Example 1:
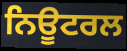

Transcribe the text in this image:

ਨਿਊਟਰਲ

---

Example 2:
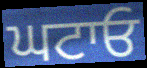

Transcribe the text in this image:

ਘਟਾਓ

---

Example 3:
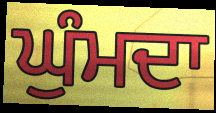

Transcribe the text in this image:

ਘੁੰਮਦਾ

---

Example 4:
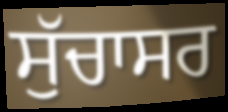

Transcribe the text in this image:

ਸੁੱਚਾਸਰ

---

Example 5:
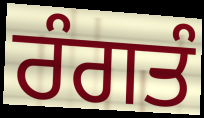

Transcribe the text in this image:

ਰੰਗਤੰ